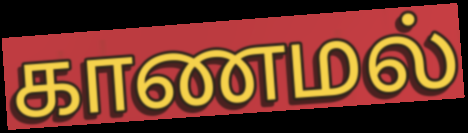
காணமல்